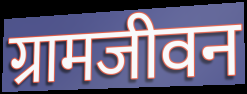
ग्रामजीवन